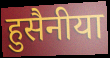
हुसैनीया